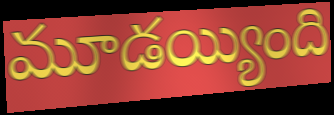
మూడయ్యింది